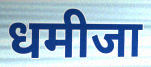
धमीजा